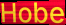
Hobe